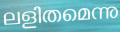
ലളിതമെന്നു